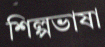
শিল্পভাষা